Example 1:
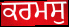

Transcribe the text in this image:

ਕਰਮਸੁ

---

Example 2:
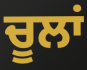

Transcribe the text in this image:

ਚੂਲਾਂ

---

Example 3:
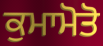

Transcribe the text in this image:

ਕੁਮਾਮੋਤੋ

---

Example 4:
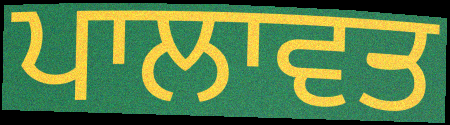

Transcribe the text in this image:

ਪਾਲਾਵਤ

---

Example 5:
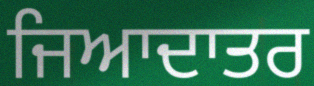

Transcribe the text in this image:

ਜਿਆਦਾਤਰ